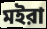
মইরা